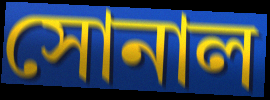
সোনাল